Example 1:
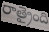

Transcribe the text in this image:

రాత్రైంది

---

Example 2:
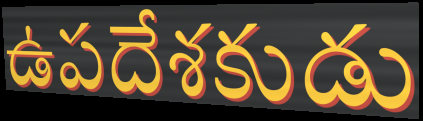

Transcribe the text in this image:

ఉపదేశకుడు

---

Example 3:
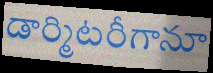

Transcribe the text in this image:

డార్మిటరీగానూ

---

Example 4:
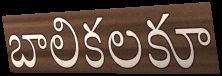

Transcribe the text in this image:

బాలికలకూ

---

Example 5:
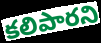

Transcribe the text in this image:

కలిపారని